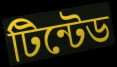
টিন্টেড